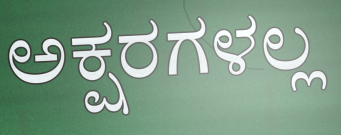
ಅಕ್ಷರಗಳಲ್ಲ